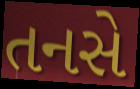
તનસે